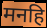
मनहि